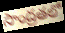
సాంద్రతలో